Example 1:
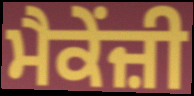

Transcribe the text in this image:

ਮੈਕੇਂਜ਼ੀ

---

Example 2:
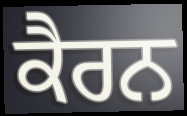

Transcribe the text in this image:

ਕੈਰਨ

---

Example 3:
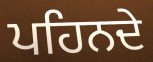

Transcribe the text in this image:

ਪਹਿਨਦੇ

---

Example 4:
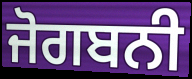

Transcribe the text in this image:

ਜੋਗਬਨੀ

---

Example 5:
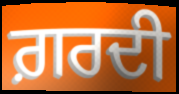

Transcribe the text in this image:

ਗ਼ਰਦੀ